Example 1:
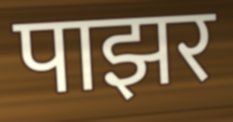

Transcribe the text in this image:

पाझर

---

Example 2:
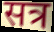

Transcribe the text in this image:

सत्र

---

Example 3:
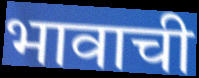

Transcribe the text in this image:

भावाची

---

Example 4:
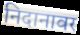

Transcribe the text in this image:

निदानावर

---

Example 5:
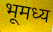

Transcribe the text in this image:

भूमध्य